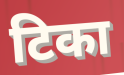
टिका